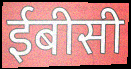
ईबीसी